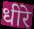
धीरे